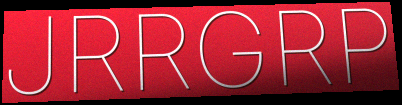
JRRGRP